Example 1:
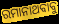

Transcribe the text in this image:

ରମାନାଥବାବୁ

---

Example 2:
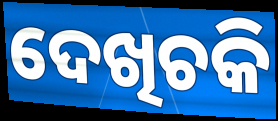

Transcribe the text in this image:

ଦେଖିଚକି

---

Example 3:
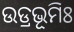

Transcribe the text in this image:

ଉଡ୍ରଭୂମିଃ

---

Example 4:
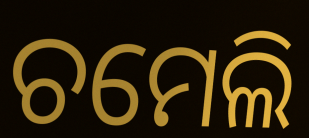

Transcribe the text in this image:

ଚମେଲି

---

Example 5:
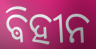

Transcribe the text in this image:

ଵିହୀନ